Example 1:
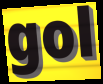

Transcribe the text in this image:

gol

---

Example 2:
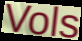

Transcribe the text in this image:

Vols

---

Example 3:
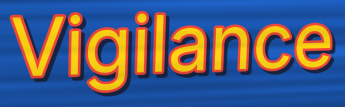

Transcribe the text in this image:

Vigilance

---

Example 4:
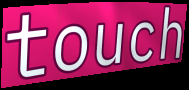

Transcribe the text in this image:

touch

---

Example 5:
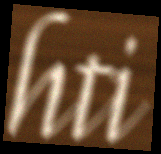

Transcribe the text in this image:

hti